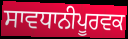
ਸਾਵਧਾਨੀਪੂਰਵਕ